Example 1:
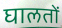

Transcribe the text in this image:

घालतों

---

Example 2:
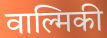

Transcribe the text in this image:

वाल्मिकी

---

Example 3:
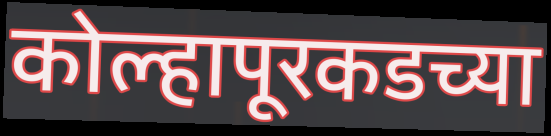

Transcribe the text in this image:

कोल्हापूरकडच्या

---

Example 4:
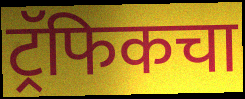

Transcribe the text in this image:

ट्रॅफिकचा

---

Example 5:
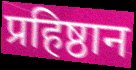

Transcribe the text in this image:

प्रहिष्ठान